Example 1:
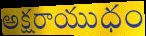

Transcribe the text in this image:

అక్షరాయుధం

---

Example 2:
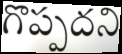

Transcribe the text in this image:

గొప్పదని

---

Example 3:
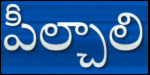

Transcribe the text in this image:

పీల్చాలి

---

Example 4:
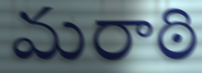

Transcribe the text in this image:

మరాఠి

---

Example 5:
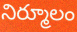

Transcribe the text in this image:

నిర్మూలం